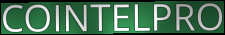
COINTELPRO